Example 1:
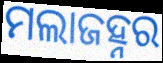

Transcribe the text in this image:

ମଲାଜହ୍ନର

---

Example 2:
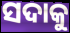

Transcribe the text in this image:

ସଦାକୁ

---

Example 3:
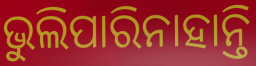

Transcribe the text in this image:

ଭୁଲିପାରିନାହାନ୍ତି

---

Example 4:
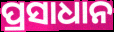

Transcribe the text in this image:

ପ୍ରସାଧାନ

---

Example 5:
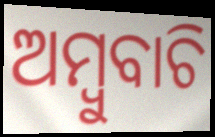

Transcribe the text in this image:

ଅମ୍ବୁବାଚି